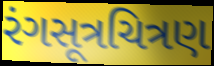
રંગસૂત્રચિત્રણ